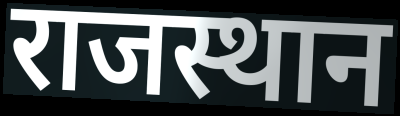
राजस्थान